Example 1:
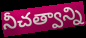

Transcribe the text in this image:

నీచత్వాన్ని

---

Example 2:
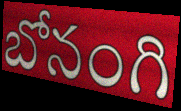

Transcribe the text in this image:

బోనంగి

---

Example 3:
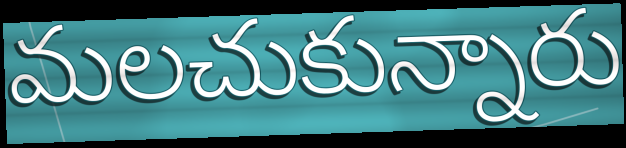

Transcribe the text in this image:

మలచుకున్నారు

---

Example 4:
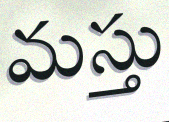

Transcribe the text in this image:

మస్తు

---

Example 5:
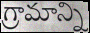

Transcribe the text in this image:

గ్రామాన్ని